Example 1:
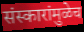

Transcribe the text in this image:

संस्कारांमुळेच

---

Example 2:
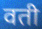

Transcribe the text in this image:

वती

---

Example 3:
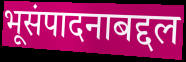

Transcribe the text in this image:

भूसंपादनाबद्दल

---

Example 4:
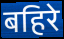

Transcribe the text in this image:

बहिरे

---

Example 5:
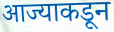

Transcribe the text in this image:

आज्याकडून